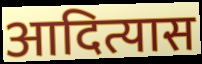
आदित्यास